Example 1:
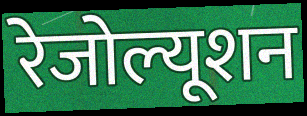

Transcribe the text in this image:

रेजोल्यूशन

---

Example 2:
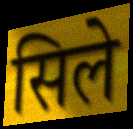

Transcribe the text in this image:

सिले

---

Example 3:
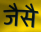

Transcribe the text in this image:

जैसै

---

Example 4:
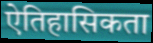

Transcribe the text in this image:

ऐतिहासिकता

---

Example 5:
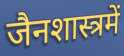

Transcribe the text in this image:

जैनशास्त्रमें